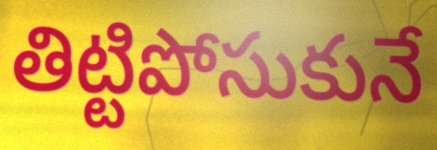
తిట్టిపోసుకునే